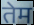
तेम